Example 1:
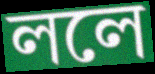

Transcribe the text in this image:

ললে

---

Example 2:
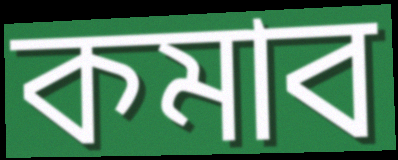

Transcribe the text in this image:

কমাব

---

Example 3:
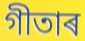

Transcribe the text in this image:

গীতাৰ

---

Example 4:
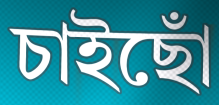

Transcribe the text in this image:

চাইছোঁ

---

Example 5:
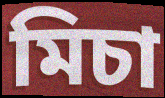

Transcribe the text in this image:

মিচা